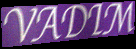
VADIM